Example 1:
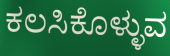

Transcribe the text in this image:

ಕಲಸಿಕೊಳ್ಳುವ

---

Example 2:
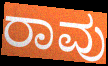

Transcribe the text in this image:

ರಾವು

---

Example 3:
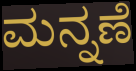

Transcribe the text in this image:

ಮನ್ನಣೆ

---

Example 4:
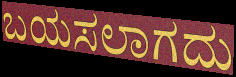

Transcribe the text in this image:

ಬಯಸಲಾಗದು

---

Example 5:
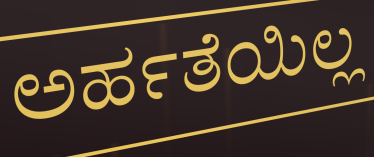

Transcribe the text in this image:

ಅರ್ಹತೆಯಿಲ್ಲ